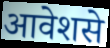
आवेशसे